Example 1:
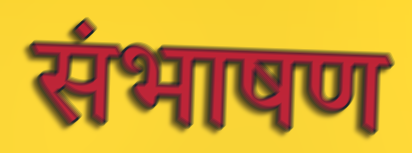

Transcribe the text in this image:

संभाषण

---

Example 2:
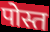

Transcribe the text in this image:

पोस्त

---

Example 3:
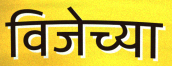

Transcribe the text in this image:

विजेच्या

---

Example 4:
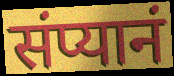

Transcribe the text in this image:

संप्यानं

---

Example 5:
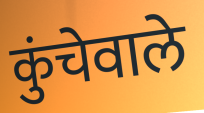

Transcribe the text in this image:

कुंचेवाले